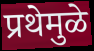
प्रथेमुळे